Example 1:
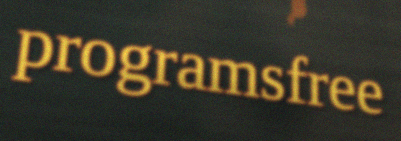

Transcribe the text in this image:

programsfree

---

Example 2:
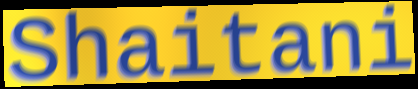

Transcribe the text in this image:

Shaitani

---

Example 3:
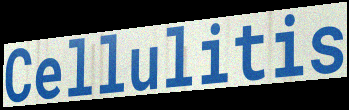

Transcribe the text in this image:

Cellulitis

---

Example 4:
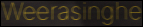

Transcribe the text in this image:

Weerasinghe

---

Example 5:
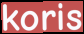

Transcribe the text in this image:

koris